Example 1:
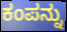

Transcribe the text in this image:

ಕಂಪನ್ನು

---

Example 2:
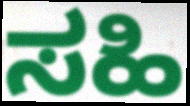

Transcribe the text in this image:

ಸಹಿ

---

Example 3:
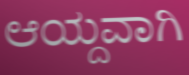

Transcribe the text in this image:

ಆಯ್ದವಾಗಿ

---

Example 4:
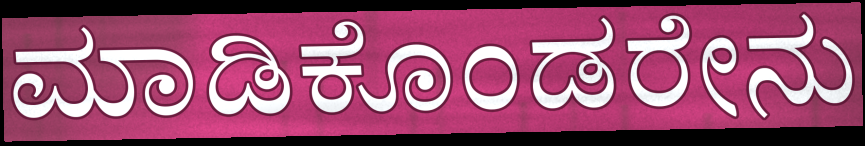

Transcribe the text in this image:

ಮಾಡಿಕೊಂಡರೇನು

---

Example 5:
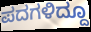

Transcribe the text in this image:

ಪದಗಳಿದ್ದೂ